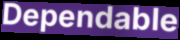
Dependable